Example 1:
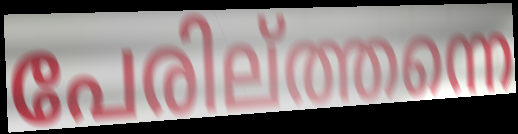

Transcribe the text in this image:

പേരില്ത്തന്നെ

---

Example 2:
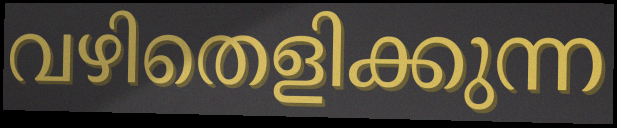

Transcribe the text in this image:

വഴിതെളിക്കുന്ന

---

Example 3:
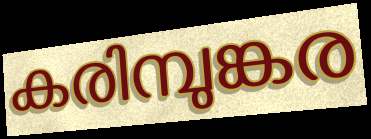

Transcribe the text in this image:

കരിമ്പുങ്കര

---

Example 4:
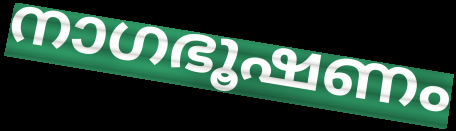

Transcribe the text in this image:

നാഗഭൂഷണം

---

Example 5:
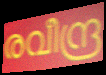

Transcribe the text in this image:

രവീന്ദ്ര